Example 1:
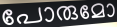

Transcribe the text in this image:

പോരുമോ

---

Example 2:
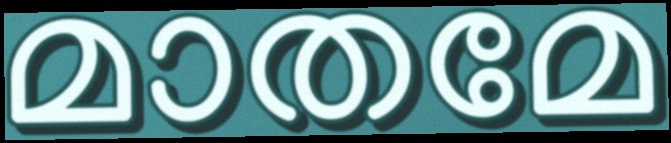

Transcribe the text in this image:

മാതമേ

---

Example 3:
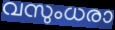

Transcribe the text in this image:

വസുംധരാ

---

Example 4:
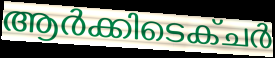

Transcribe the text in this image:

ആർക്കിടെക്ചർ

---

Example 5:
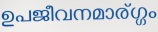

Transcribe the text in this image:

ഉപജീവനമാര്ഗ്ഗം